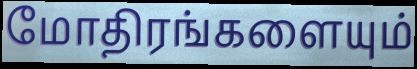
மோதிரங்களையும்